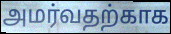
அமர்வதற்காக